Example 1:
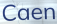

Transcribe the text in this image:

Caen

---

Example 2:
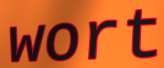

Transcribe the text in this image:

wort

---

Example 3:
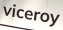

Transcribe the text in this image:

viceroy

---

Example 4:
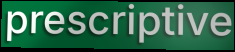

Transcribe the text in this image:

prescriptive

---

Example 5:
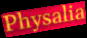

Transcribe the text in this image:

Physalia